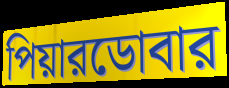
পিয়ারডোবার